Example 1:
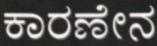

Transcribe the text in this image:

ಕಾರಣೇನ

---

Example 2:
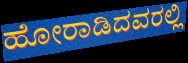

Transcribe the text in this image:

ಹೋರಾಡಿದವರಲ್ಲಿ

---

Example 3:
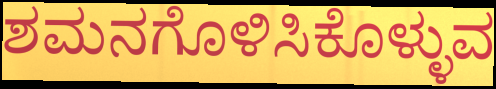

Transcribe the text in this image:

ಶಮನಗೊಳಿಸಿಕೊಳ್ಳುವ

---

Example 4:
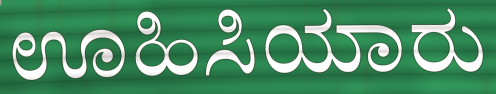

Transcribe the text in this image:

ಊಹಿಸಿಯಾರು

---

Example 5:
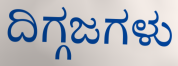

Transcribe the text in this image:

ದಿಗ್ಗಜಗಳು